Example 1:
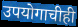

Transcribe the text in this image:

उपयोगाचीही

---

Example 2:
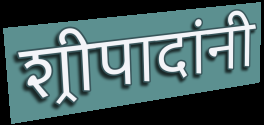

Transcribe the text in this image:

श्रीपादांनी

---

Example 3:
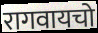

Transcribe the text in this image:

रागवायचो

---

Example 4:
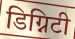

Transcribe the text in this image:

डिग्निटी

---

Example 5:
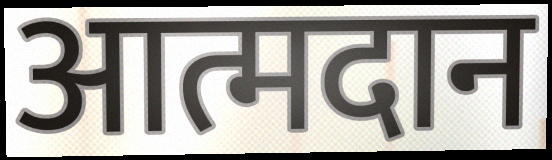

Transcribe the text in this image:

आत्मदान